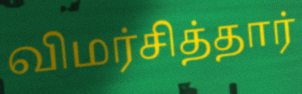
விமர்சித்தார்